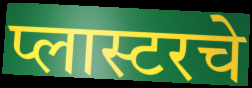
प्लास्टरचे